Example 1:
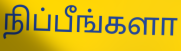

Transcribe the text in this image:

நிப்பீங்களா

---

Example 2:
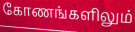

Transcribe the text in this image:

கோணங்களிலும்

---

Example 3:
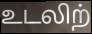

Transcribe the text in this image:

உடலிற்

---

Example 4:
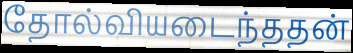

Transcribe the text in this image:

தோல்வியடைந்ததன்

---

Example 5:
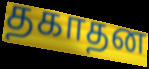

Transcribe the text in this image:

தகாதன